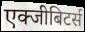
एक्जीबिटर्स